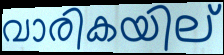
വാരികയില്